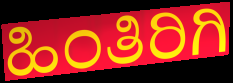
ಹಿಂತಿರಿಗಿ